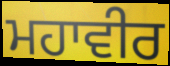
ਮਹਾਵੀਰ